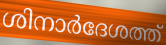
ശിനാർദേശത്ത്